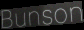
Bunson